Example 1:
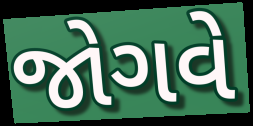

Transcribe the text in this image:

જોગવે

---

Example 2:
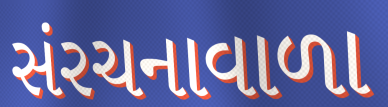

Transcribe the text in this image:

સંરચનાવાળા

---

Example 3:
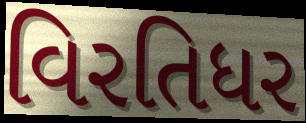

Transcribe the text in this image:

વિરતિધર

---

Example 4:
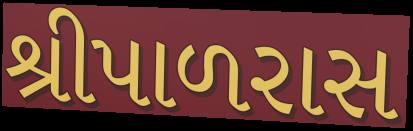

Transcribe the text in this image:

શ્રીપાળરાસ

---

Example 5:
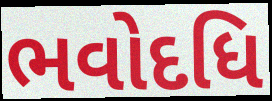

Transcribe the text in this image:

ભવોદધિ